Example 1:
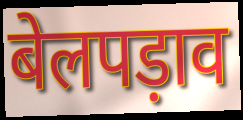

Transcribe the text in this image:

बेलपड़ाव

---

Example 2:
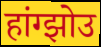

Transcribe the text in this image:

हांग्झोउ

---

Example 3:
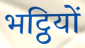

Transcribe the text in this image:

भट्ठियों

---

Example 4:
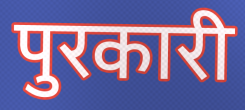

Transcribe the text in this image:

पुरकारी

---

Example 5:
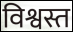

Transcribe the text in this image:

विश्वस्त